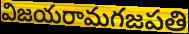
విజయరామగజపతి